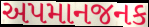
અપમાનજનક